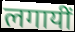
लगायीं